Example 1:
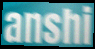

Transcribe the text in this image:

anshi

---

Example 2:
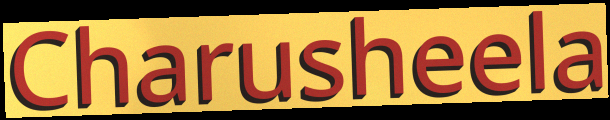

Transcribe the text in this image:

Charusheela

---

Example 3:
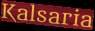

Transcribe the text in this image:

Kalsaria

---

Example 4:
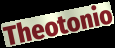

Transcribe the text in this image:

Theotonio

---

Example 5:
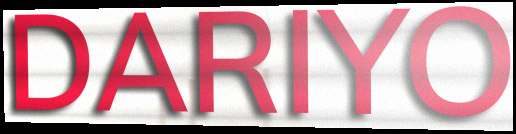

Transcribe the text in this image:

DARIYO